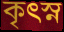
কৃৎস্ন